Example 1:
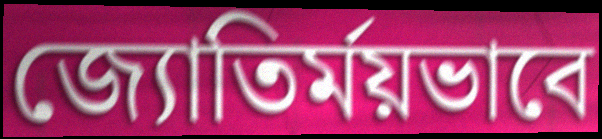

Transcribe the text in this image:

জ্যোতির্ময়ভাবে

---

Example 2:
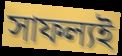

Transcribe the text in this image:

সাফল্যই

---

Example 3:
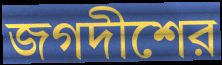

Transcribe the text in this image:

জগদীশের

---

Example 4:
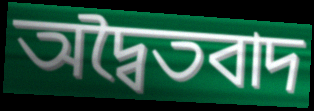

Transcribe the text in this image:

অদ্বৈতবাদ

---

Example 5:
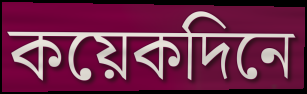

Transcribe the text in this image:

কয়েকদিনে